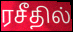
ரசீதில்